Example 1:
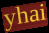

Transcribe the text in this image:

yhai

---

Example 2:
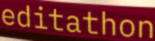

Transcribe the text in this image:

editathon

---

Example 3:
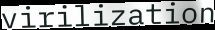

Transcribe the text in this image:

virilization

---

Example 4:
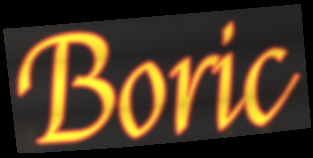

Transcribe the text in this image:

Boric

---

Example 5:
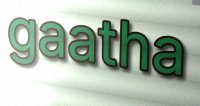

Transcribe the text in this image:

gaatha